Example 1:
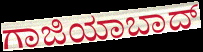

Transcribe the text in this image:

ಗಾಜಿಯಾಬಾದ್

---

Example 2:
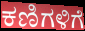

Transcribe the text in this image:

ಕಣಿಗಳಿಗೆ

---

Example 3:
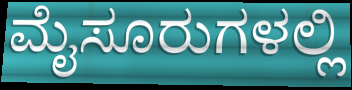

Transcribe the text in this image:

ಮೈಸೂರುಗಳಲ್ಲಿ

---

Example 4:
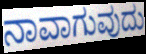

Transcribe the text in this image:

ನಾವಾಗುವುದು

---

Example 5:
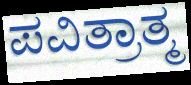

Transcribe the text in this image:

ಪವಿತ್ರಾತ್ಮ